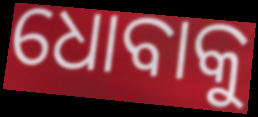
ଧୋବାକୁ